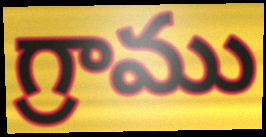
గ్రాము